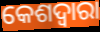
କେଶଦ୍ବାରା